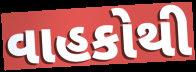
વાહકોથી